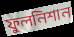
ফুলনিশান